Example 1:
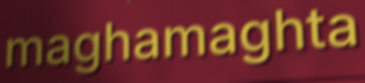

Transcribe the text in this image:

maghamaghta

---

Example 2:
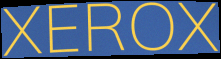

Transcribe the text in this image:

XEROX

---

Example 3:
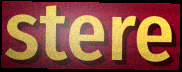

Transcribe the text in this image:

stere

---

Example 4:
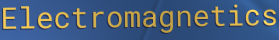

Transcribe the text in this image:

Electromagnetics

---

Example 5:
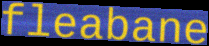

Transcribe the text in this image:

fleabane